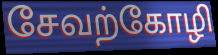
சேவற்கோழி